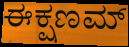
ಈಕ್ಷಣಮ್